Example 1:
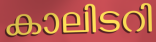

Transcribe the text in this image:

കാലിടറി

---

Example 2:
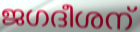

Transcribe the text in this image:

ജഗദീശന്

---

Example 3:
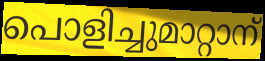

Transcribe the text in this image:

പൊളിച്ചുമാറ്റാന്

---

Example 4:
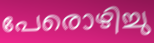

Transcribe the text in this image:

പേരൊഴിച്ചു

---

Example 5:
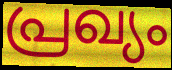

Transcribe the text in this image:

പ്രഖ്യം